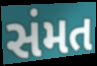
સંમત